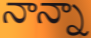
నాన్నా